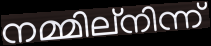
നമ്മില്നിന്ന്